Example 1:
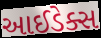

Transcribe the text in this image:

આઈડેક્સ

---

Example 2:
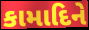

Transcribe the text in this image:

કામાદિને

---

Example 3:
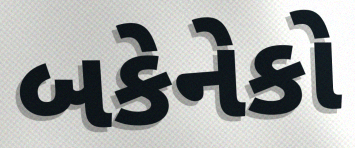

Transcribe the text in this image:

બકેનેકો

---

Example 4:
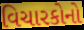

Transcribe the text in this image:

વિચારકોનો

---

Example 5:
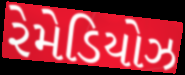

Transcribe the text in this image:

રેમેડિયોઝ